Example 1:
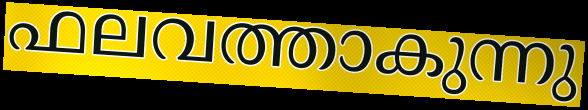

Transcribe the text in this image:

ഫലവത്താകുന്നു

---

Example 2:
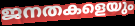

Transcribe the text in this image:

ജനതകളെയും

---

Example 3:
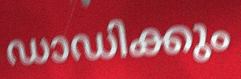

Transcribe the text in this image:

ഡാഡിക്കും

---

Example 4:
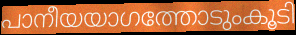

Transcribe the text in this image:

പാനീയയാഗത്തോടുംകൂടി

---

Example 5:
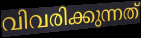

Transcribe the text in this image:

വിവരിക്കുന്നത്